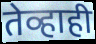
तेव्हाही